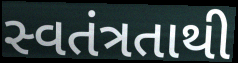
સ્વતંત્રતાથી